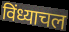
विंध्याचल